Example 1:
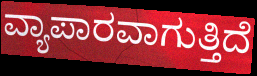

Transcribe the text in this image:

ವ್ಯಾಪಾರವಾಗುತ್ತಿದೆ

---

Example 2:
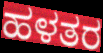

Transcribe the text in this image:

ಹಳತರ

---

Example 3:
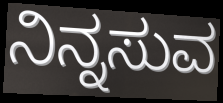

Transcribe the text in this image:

ನಿನ್ನಸುವ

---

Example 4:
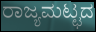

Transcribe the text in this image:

ರಾಜ್ಯಮಟ್ಟದ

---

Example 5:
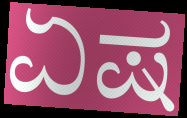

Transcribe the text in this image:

ಏಷ